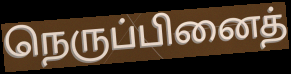
நெருப்பினைத்